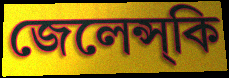
জেলেন্স্কি